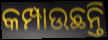
କମ୍ପାଉଛନ୍ତି